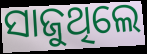
ସାଜୁଥିଲେ